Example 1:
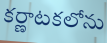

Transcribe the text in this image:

కర్ణాటకలోను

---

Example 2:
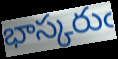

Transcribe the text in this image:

భాస్కరుఁ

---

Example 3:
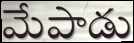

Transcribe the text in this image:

మేపాడు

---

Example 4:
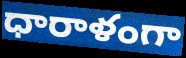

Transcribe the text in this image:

ధారాళంగా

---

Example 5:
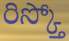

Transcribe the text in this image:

రిస్క్తో